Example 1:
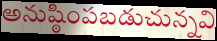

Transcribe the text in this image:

అనుష్ఠింపబడుచున్నవి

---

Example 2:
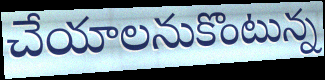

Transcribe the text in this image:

చేయాలనుకొంటున్న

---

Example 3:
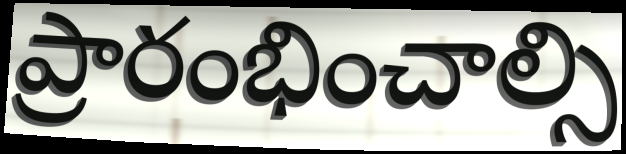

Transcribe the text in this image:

ప్రారంభించాల్సి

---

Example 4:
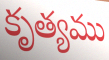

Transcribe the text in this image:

కృత్యము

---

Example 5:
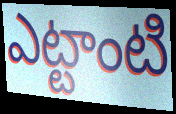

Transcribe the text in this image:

ఎట్టాంటి